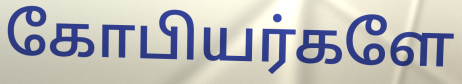
கோபியர்களே